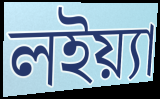
লইয়্যা